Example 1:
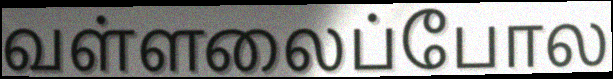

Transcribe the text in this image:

வள்ளலைப்போல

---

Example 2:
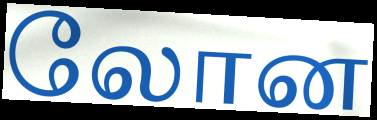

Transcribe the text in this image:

லோன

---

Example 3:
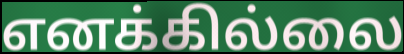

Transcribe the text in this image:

எனக்கில்லை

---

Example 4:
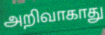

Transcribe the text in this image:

அறிவாகாது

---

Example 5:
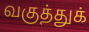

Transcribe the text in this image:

வகுத்துக்